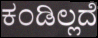
ಕಂಡಿಲ್ಲದೆ